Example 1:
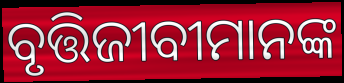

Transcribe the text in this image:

ବୃତ୍ତିଜୀବୀମାନଙ୍କ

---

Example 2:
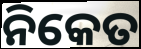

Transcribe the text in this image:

ନିକେତ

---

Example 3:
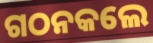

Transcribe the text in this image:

ଗଠନକଲେ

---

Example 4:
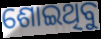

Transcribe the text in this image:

ଶୋଇଥିବୁ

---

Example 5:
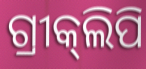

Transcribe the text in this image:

ଗ୍ରୀକ୍‌ଲିପି